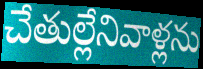
చేతుల్లేనివాళ్లను